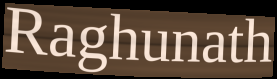
Raghunath